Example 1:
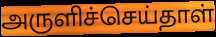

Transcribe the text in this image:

அருளிச்செய்தாள்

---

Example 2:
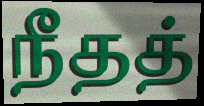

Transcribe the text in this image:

நீதத்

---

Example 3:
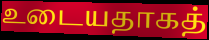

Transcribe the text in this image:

உடையதாகத்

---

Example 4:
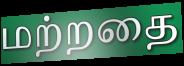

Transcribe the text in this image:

மற்றதை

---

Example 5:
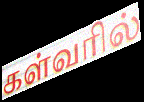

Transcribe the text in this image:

கள்வரில்